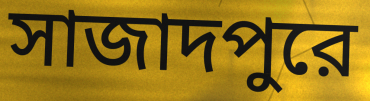
সাজাদপুরে